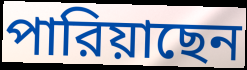
পারিয়াছেন